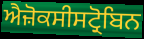
ਐਜ਼ੋਕਸੀਸਟ੍ਰੋਬਿਨ